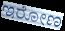
ಇರೋಣ